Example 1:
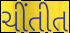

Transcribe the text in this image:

ચીંતીત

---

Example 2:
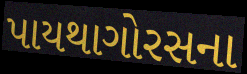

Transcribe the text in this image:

પાયથાગોરસના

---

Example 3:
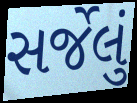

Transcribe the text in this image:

સર્જેલું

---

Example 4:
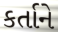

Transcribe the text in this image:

કર્તાને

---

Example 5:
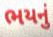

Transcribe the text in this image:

ભયનું